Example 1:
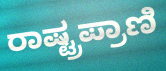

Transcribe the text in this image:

ರಾಷ್ಟ್ರಪ್ರಾಣಿ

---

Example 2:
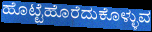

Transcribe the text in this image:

ಹೊಟ್ಟೆಹೊರೆದುಕೊಳ್ಳುವ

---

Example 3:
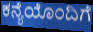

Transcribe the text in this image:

ಕನ್ಯೆಯೊಂದಿಗೆ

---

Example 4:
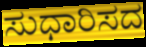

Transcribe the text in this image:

ಸುಧಾರಿಸದ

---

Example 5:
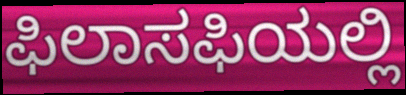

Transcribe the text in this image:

ಫಿಲಾಸಫಿಯಲ್ಲಿ